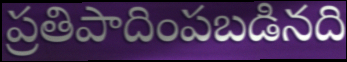
ప్రతిపాదింపబడినది